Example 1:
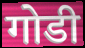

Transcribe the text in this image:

गोडी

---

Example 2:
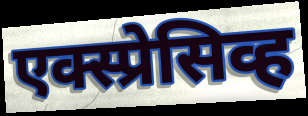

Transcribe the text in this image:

एक्स्प्रेसिव्ह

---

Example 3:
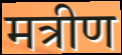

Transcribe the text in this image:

मत्रीण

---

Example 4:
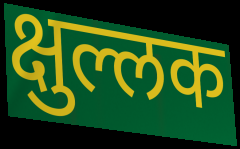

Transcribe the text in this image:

क्षुल्लक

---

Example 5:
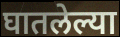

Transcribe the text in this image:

घातलेल्या